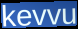
kevvu